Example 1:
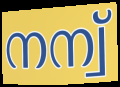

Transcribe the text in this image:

നന്വ്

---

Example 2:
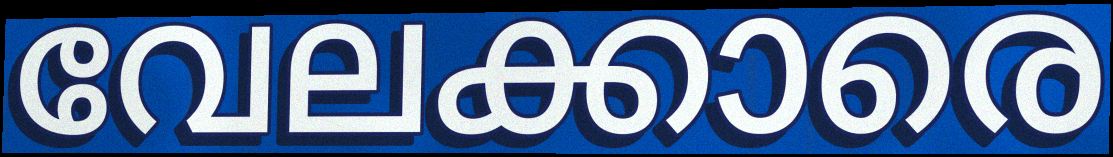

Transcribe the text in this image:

വേലക്കാരെ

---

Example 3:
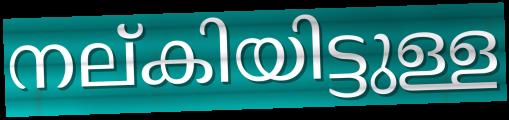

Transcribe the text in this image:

നല്കിയിട്ടുള്ള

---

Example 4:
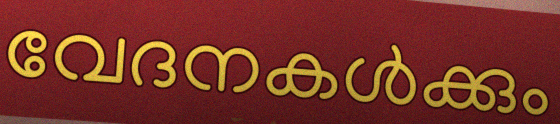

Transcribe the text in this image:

വേദനകൾക്കും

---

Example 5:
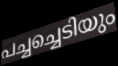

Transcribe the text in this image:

പച്ചച്ചെടിയും